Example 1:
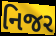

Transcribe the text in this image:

નિજર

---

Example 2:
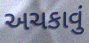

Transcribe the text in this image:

અચકાવું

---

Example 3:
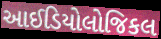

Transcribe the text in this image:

આઈડિયોલોજિકલ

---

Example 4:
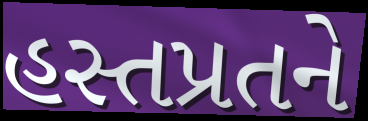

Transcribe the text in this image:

હસ્તપ્રતને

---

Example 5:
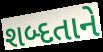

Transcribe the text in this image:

શબ્દતાને